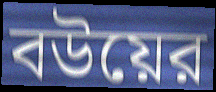
বউয়ের